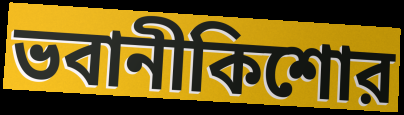
ভবানীকিশোর